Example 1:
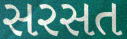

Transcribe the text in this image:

સરસત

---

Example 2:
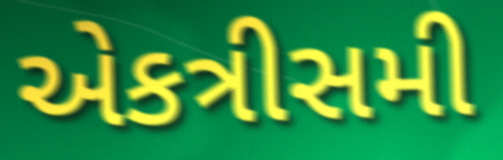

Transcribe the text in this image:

એકત્રીસમી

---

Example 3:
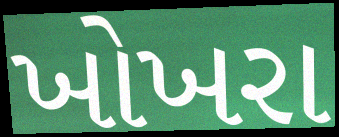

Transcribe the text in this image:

ખોખરા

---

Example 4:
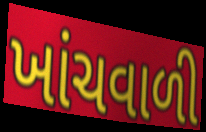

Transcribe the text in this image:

ખાંચવાળી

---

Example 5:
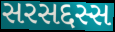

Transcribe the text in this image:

સરસદ્દસ્સ